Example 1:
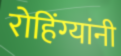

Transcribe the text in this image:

रोहिंग्यांनी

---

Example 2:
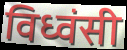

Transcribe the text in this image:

विध्वंसी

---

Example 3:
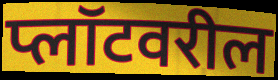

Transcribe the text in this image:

प्लॉटवरील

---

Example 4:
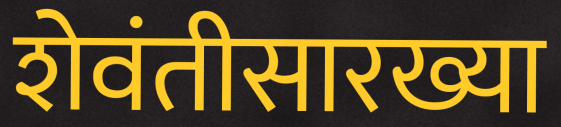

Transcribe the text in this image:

शेवंतीसारख्या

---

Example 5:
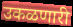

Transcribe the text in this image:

उकळणारी